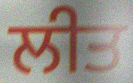
ਲੀਤ